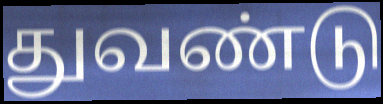
துவண்டு